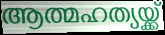
ആത്മഹത്യയ്ക്ക്